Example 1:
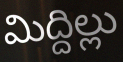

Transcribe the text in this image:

మిద్దిల్లు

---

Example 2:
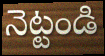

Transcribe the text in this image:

నెట్టండి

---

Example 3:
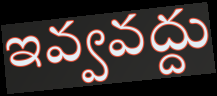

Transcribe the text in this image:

ఇవ్వవద్దు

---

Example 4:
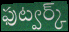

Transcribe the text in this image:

ఫుట్వర్క్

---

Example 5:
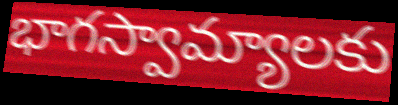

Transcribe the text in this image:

భాగస్వామ్యాలకు